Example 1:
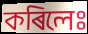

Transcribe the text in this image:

কৰিলেঃ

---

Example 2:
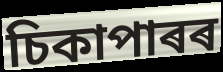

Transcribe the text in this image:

চিকাপাৰৰ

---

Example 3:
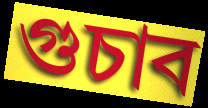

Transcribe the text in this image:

গুচাব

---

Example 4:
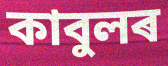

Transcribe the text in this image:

কাবুলৰ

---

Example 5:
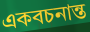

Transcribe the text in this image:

একবচনান্ত